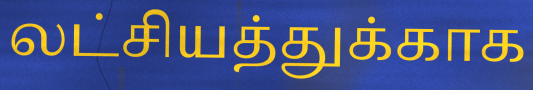
லட்சியத்துக்காக